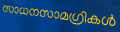
സാധനസാമഗ്രികൾ